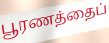
பூரணத்தைப்